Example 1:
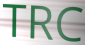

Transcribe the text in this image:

TRC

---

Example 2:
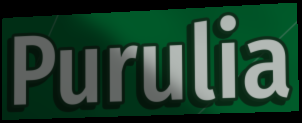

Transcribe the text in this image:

Purulia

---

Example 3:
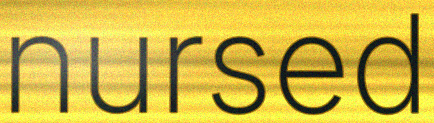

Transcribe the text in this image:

nursed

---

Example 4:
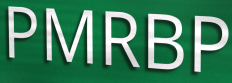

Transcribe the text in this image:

PMRBP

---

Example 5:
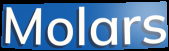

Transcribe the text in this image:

Molars